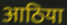
आठिया